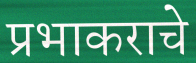
प्रभाकराचे